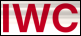
IWC